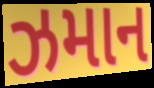
ઝમાન